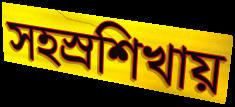
সহস্রশিখায়